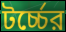
টর্চ্চের